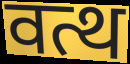
वत्थ